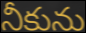
నీకును